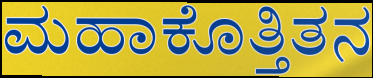
ಮಹಾಕೊತ್ತಿತನ